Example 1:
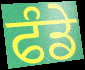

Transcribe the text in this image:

ਫੰਡੇ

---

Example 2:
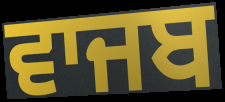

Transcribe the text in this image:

ਵਾਜਬ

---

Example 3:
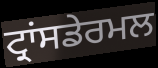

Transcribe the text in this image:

ਟ੍ਰਾਂਸਡੇਰਮਲ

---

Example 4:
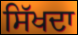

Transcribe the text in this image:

ਸਿੱਖਦਾ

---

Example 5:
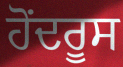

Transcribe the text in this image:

ਹੋਂਦਰੂਸ